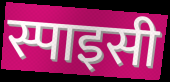
स्पाइसी